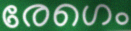
രേഗെം